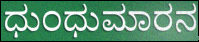
ಧುಂಧುಮಾರನ